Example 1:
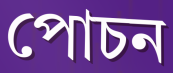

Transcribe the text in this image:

পোচন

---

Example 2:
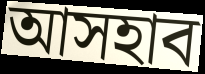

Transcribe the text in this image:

আসহাব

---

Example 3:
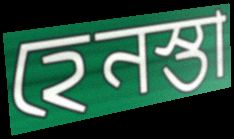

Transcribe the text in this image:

হেনস্তা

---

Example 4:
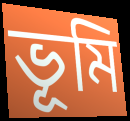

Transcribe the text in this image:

ভূমি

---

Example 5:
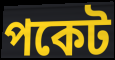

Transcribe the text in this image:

পকেট